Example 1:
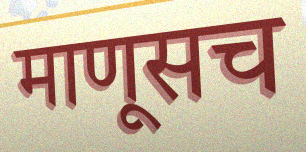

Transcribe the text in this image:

माणूसच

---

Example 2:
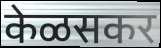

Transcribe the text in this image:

केळसकर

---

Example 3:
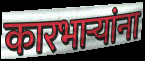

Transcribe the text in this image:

कारभाऱ्यांना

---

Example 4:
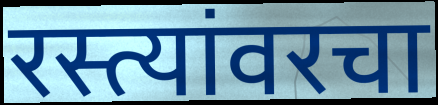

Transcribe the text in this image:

रस्त्यांवरचा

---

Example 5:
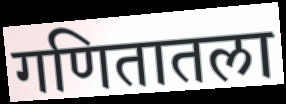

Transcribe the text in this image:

गणितातला